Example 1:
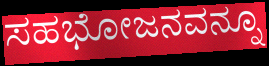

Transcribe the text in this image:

ಸಹಭೋಜನವನ್ನೂ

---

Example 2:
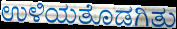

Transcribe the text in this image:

ಉಳಿಯತೊಡಗಿತು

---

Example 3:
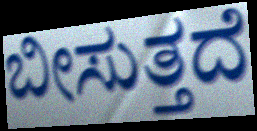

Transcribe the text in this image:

ಬೀಸುತ್ತದೆ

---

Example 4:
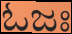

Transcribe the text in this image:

ಓಜಃ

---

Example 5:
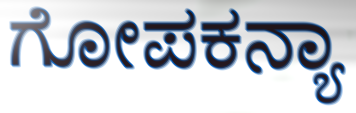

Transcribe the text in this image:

ಗೋಪಕನ್ಯಾ